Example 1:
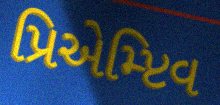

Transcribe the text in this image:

પ્રિએમ્પ્ટિવ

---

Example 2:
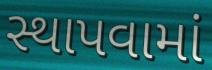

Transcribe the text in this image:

સ્થાપવામાં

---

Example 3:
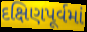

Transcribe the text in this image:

દક્ષિણપૂર્વમાં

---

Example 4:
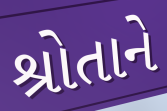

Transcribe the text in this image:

શ્રોતાને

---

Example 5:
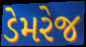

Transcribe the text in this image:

ડેમરેજ